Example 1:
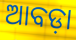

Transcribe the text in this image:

ଆବଡ଼ା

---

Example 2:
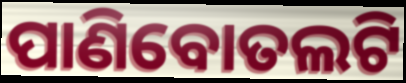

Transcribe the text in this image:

ପାଣିବୋତଲଟି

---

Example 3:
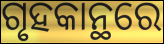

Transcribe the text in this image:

ଗୃହକାନ୍ଥରେ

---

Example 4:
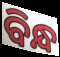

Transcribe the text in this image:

ବିନ୍ଧ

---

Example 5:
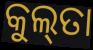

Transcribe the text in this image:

କୁଲ୍‌ତା